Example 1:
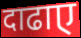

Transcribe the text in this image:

दाढाए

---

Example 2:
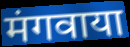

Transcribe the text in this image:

मंगवाया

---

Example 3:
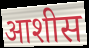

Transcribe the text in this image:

आशीस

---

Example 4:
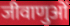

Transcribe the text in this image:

जीवाणुओं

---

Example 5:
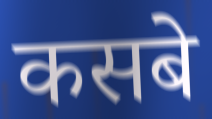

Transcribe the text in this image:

कसबे